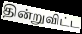
தின்றுவிட்ட